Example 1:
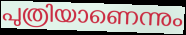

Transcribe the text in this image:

പുത്രിയാണെന്നും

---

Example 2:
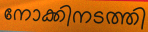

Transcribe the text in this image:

നോക്കിനടത്തി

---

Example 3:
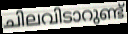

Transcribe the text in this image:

ചിലവിടാറുണ്ട്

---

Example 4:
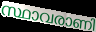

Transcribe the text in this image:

സ്ഥാവരാണി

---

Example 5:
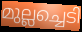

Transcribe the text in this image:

മുല്ലച്ചെടി